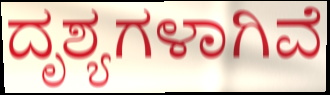
ದೃಶ್ಯಗಳಾಗಿವೆ